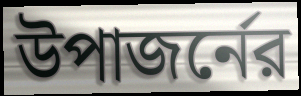
উপাজর্নের